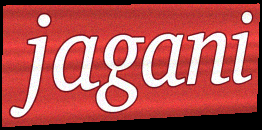
jagani